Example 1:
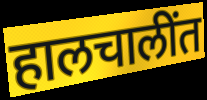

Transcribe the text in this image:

हालचालींत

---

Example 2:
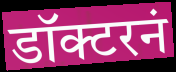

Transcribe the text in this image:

डॉक्टरनं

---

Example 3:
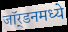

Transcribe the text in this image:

जॉर्डनमध्ये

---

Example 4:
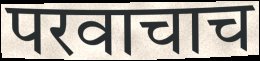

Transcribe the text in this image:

परवाचाच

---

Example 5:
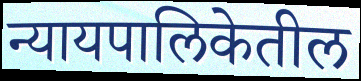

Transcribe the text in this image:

न्यायपालिकेतील